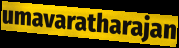
umavaratharajan